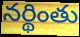
నర్థింతు